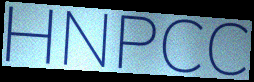
HNPCC